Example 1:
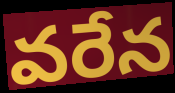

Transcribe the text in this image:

వరేన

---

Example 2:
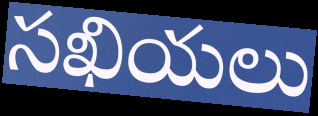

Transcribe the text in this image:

సఖియలు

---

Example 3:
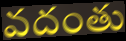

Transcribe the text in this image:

వదంతు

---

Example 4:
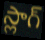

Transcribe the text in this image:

స్లాగ్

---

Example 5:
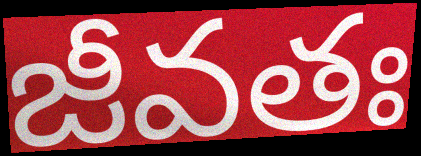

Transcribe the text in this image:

జీవతః